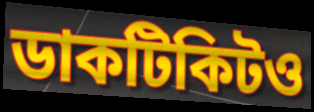
ডাকটিকিটও